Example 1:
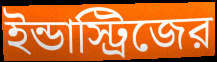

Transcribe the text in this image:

ইন্ডাস্ট্রিজের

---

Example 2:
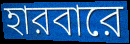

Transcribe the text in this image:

হারবারে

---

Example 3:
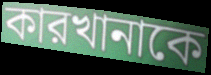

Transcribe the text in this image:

কারখানাকে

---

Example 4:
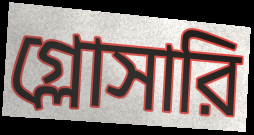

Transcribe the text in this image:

গ্লোসারি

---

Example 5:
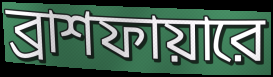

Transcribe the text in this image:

ব্রাশফায়ারে